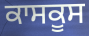
ਕਾਸਕੂਸ